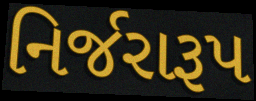
નિર્જરારૂપ